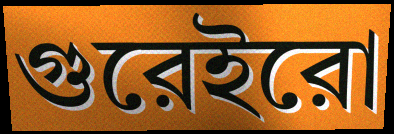
গুরেইরো